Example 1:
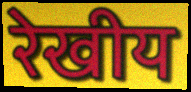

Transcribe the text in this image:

रेखीय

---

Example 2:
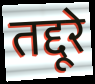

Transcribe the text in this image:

तद्दूरे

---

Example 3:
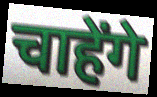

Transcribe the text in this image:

चाहेंगे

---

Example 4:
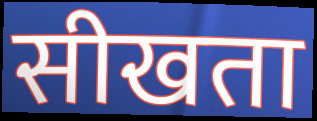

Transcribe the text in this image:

सीखता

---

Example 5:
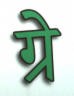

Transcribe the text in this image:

ग्रे